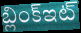
బ్లింక్ఇట్